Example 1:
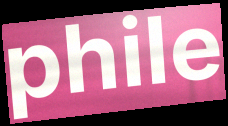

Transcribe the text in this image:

phile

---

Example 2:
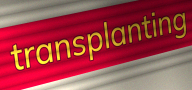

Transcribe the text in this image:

transplanting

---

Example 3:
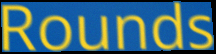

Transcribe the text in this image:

Rounds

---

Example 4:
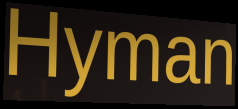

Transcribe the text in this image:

Hyman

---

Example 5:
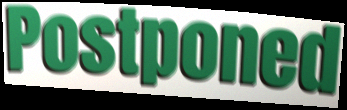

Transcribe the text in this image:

Postponed